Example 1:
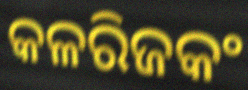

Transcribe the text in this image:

କଳରିଜକଂ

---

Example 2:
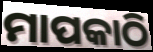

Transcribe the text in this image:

ମାପକାଠି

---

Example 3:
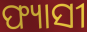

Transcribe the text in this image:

ଫ୍ୟାସୀ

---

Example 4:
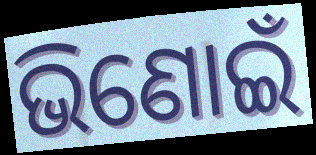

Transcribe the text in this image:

ଭିଣୋଇଁ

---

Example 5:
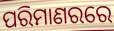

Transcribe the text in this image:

ପରିମାଣରରେ